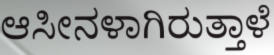
ಆಸೀನಳಾಗಿರುತ್ತಾಳೆ